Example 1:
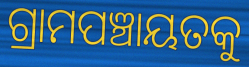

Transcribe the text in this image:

ଗ୍ରାମପଞ୍ଚାୟତକୁ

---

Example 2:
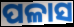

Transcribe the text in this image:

ପଳାସ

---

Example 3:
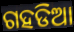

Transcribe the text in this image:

ଗହଡିଆ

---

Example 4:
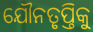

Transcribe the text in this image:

ଯୌନତୃପ୍ତିକୁ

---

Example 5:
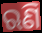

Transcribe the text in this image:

ଋଣି